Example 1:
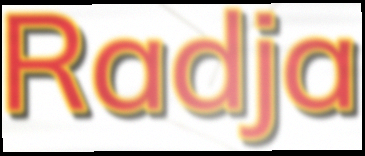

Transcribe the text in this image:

Radja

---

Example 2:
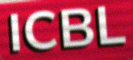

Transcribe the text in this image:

ICBL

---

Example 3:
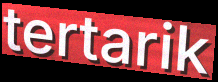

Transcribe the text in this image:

tertarik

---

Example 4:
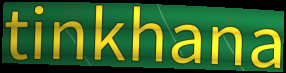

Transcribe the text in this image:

tinkhana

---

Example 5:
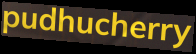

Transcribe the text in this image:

pudhucherry